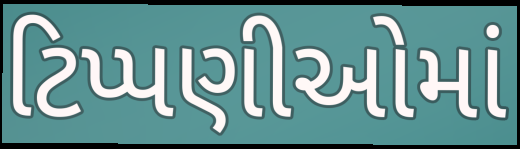
ટિપ્પણીઓમાં